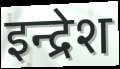
इन्द्रेश